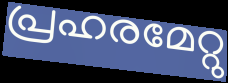
പ്രഹരമേറ്റു